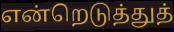
என்றெடுத்துத்